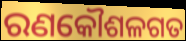
ରଣକୌଶଳଗତ